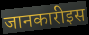
जानकारीइस